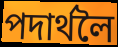
পদাৰ্থলৈ